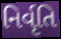
નિર્વૃતિ